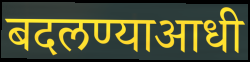
बदलण्याआधी